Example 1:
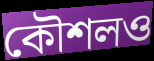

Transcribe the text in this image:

কৌশলও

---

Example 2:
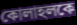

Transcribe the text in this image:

কোলাহলকে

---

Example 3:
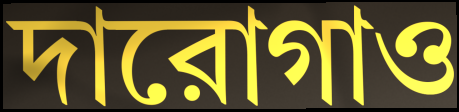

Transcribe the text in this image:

দারোগাও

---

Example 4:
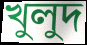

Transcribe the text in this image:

খুলুদ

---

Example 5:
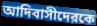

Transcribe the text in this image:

আদিবাসীদেরকে